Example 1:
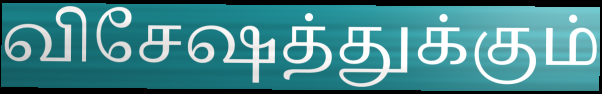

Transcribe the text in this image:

விசேஷத்துக்கும்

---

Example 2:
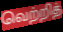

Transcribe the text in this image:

வெற்றித்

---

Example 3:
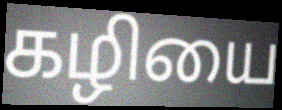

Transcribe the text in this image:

கழியை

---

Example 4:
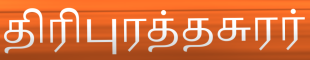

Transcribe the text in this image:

திரிபுரத்தசுரர்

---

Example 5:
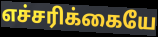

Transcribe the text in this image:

எச்சரிக்கையே